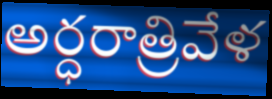
అర్ధరాత్రివేళ